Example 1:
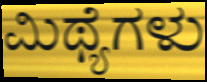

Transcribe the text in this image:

ಮಿಥ್ಯೆಗಳು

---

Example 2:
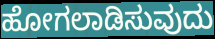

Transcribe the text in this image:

ಹೋಗಲಾಡಿಸುವುದು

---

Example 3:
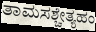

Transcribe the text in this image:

ತಾಮಸಶ್ಚೇತ್ಯಹಂ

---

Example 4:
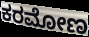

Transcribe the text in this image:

ಕರಮೋಣ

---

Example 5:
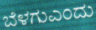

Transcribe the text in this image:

ಬೆಳಗುಎಂದು